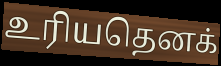
உரியதெனக்